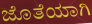
ಜೊತೆಯಾಗಿ